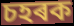
চহৰক